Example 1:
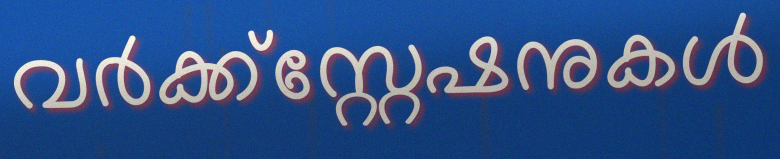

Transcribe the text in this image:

വർക്ക്സ്റ്റേഷനുകൾ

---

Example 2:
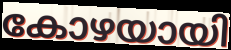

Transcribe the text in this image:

കോഴയായി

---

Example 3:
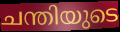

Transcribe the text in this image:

ചന്തിയുടെ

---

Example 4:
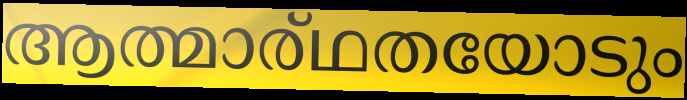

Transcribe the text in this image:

ആത്മാര്ഥതയോടും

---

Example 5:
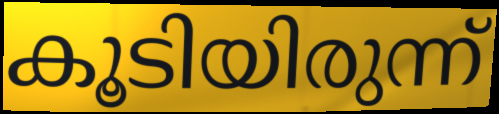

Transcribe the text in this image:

കൂടിയിരുന്ന്